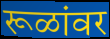
रूळांवर